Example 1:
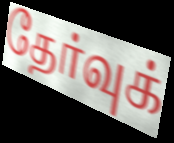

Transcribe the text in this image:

தேர்வுக்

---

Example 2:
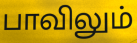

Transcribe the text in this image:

பாவிலும்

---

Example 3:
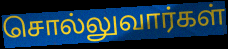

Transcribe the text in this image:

சொல்லுவார்கள்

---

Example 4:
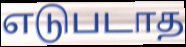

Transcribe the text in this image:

எடுபடாத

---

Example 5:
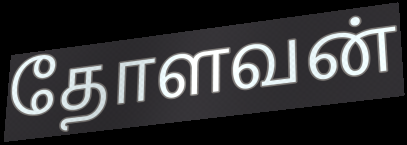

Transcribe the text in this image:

தோளவன்